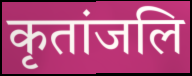
कृतांजलि